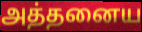
அத்தனைய